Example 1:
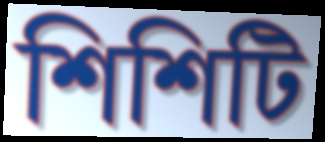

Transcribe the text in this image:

শিশিটি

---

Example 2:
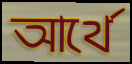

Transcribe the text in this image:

আর্থে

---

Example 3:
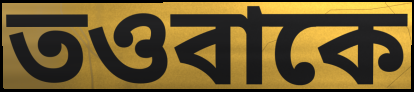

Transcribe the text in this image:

তওবাকে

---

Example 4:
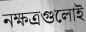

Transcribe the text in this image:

নক্ষত্রগুলোই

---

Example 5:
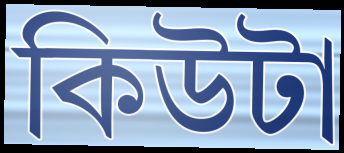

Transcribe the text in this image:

কিউটা